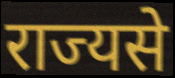
राज्यसे